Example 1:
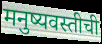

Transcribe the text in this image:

मनुष्यवस्तीची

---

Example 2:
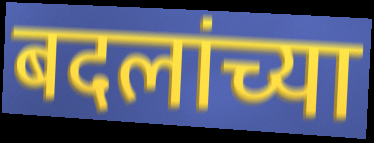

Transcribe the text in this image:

बदलांच्या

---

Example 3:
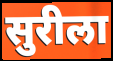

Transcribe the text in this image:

सुरीला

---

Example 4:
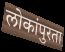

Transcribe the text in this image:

लोकांपुरता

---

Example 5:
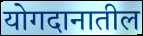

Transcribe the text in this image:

योगदानातील